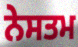
ਨੇਸਤਮ